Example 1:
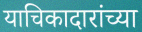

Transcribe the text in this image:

याचिकादारांच्या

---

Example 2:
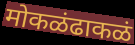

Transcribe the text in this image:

मोकळंढाकळं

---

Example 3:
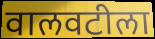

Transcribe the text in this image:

वालवटीला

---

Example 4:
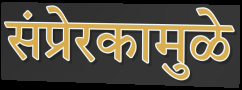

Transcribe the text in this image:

संप्रेरकामुळे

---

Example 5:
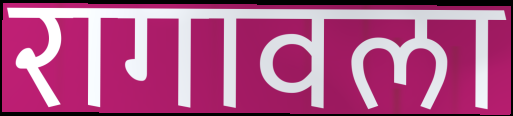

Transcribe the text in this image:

रागावला